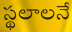
స్థలాలనే